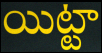
యిట్టా